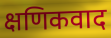
क्षणिकवाद